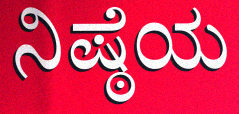
ನಿಷ್ಠೆಯ